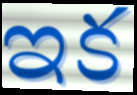
ఇక